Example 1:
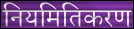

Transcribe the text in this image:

नियमितिकरण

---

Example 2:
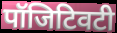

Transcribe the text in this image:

पॉजिटिवटी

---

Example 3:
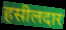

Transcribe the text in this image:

हसीलदार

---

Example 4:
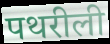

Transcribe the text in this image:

पथरीली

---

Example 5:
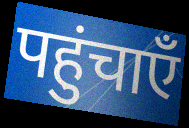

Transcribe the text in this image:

पहुंचाएँ